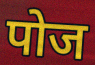
पोज